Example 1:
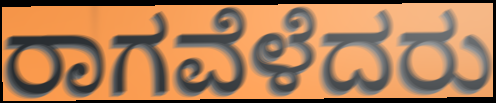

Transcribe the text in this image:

ರಾಗವೆಳೆದರು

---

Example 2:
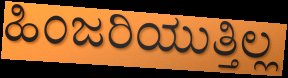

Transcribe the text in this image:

ಹಿಂಜರಿಯುತ್ತಿಲ್ಲ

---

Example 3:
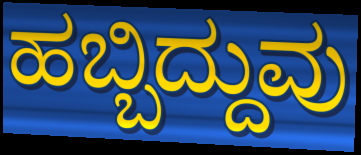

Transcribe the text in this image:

ಹಬ್ಬಿದ್ದುವು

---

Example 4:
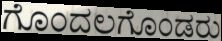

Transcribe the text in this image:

ಗೊಂದಲಗೊಂಡರು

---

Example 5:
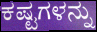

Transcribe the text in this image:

ಕಷ್ಟಗಳನ್ನು